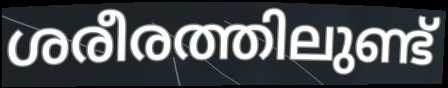
ശരീരത്തിലുണ്ട്